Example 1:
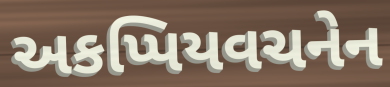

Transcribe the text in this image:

અકપ્પિયવચનેન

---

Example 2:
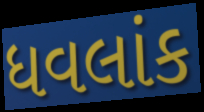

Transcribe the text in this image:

ધવલાંક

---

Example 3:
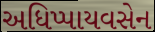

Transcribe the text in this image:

અધિપ્પાયવસેન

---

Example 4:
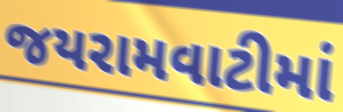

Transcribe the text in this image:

જયરામવાટીમાં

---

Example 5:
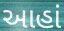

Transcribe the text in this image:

આહાં